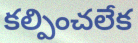
కల్పించలేక